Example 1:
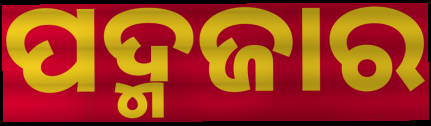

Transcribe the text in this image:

ପଦ୍ମଜାର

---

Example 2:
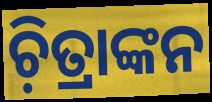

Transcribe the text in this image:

ଚ଼ିତ୍ରାଙ୍କନ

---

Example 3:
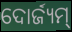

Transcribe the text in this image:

ଦୋର୍ଜ୍ୟମ୍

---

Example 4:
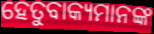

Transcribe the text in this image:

ହେତୁବାକ୍ୟମାନଙ୍କ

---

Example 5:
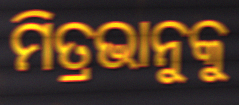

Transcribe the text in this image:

ମିତ୍ରଭାନୁକୁ